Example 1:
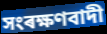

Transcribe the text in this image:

সংৰক্ষণবাদী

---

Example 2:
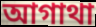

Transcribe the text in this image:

আগাথা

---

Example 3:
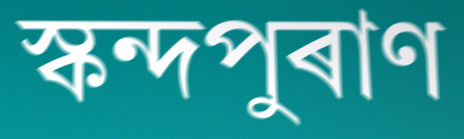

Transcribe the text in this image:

স্কন্দপুৰাণ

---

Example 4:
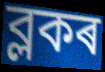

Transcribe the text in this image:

ব্লকৰ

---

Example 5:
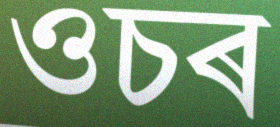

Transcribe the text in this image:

ওচৰ